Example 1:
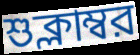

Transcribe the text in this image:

শুক্লাম্বর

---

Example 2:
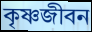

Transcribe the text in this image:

কৃষ্ণজীবন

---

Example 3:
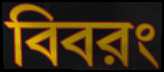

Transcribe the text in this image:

বিবরং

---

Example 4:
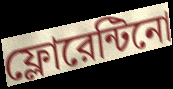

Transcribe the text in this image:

ফ্লোরেন্টিনো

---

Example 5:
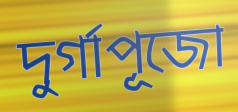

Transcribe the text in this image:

দুর্গাপূজো